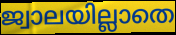
ജ്വാലയില്ലാതെ